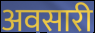
अवसारी